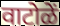
वाटोळें